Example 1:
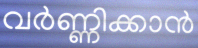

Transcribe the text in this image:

വർണ്ണിക്കാൻ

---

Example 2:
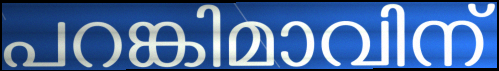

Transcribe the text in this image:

പറങ്കിമാവിന്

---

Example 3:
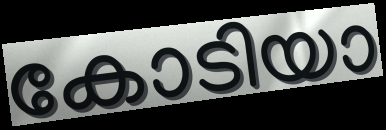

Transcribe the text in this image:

കോടിയാ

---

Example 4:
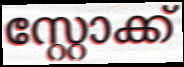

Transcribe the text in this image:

സ്റ്റോക്ക്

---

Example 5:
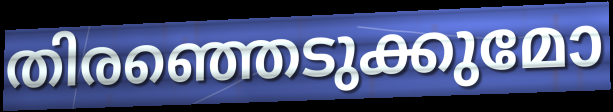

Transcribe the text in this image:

തിരഞ്ഞെടുക്കുമോ